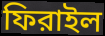
ফিরাইল